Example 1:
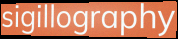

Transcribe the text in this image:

sigillography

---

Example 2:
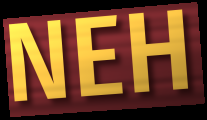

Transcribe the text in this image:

NEH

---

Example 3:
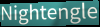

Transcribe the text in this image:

Nightengle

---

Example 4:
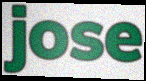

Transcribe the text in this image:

jose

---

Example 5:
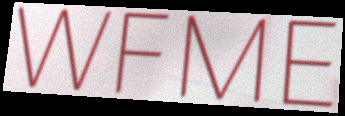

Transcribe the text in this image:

WFME